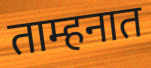
ताम्हनात